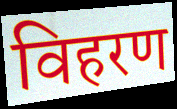
विहरण